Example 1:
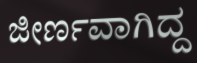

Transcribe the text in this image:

ಜೀರ್ಣವಾಗಿದ್ದ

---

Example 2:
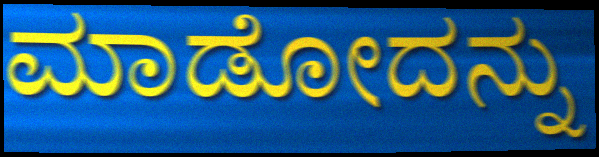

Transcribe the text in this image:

ಮಾಡೋದನ್ನು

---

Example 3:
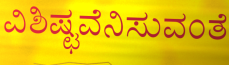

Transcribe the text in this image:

ವಿಶಿಷ್ಟವೆನಿಸುವಂತೆ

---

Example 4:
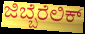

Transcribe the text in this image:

ಜಿಬ್ಬೆರೆಲಿಕ್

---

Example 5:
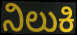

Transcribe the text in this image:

ನಿಲುಕಿ